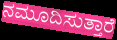
ನಮೂದಿಸುತ್ತಾರೆ